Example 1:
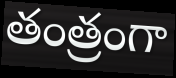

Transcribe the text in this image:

తంత్రంగా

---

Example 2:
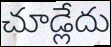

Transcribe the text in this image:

చూడ్లేదు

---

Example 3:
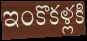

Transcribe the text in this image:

ఇంకొకళ్లకి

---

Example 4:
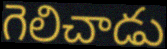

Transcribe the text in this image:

గెలిచాడు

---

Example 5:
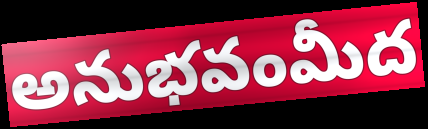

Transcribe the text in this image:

అనుభవంమీద